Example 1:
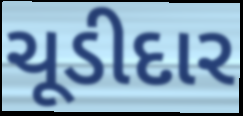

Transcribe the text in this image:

ચૂડીદાર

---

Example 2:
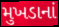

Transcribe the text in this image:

મુખડાનાં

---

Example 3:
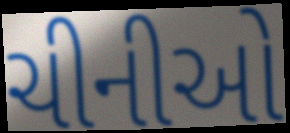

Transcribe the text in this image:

ચીનીઓ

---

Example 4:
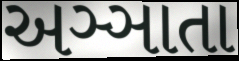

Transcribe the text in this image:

અઞ્ઞાતા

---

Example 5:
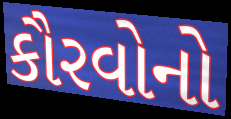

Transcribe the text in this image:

કૌરવોનો